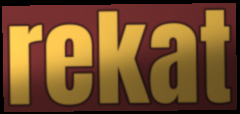
rekat